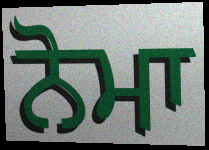
ਨੋਮਾ